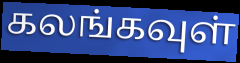
கலங்கவுள்